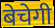
बेचेगी